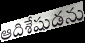
ఆదిశేషుడను